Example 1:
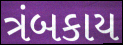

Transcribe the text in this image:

ત્રંબકાય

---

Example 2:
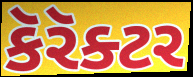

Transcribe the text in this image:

કૅરૅક્ટર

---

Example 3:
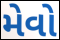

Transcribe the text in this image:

મેવો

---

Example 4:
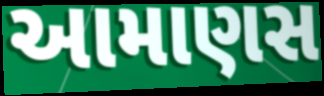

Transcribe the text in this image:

આમાણસ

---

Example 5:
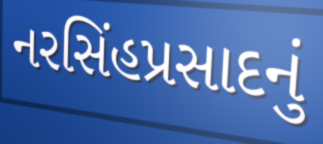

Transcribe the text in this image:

નરસિંહપ્રસાદનું